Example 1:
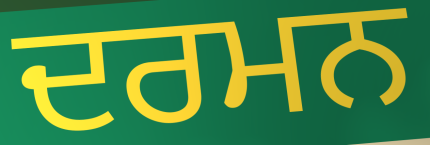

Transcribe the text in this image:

ਦਰਮਨ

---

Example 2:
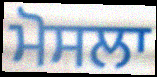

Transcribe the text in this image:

ਮੋਸਲਾ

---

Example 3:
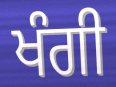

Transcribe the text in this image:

ਖੰਗੀ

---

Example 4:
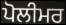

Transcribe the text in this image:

ਪੋਲੀਮਰ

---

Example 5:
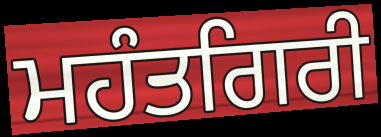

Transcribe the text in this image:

ਮਹੰਤਗਿਰੀ